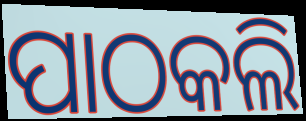
ପାଠକଲି